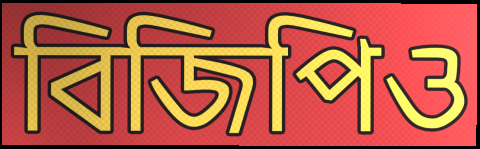
বিজিপিও